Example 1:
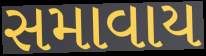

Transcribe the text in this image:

સમાવાય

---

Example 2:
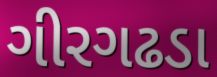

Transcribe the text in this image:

ગીરગઢડા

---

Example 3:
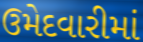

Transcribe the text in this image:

ઉમેદવારીમાં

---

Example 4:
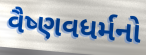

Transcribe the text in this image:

વૈષ્ણવધર્મનો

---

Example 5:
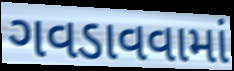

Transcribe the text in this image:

ગવડાવવામાં